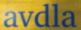
avdla